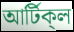
আর্টিক্‌ল